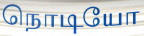
நொடியோ